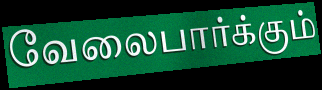
வேலைபார்க்கும்